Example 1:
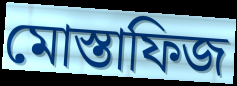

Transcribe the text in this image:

মোস্তাফিজ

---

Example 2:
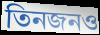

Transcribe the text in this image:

তিনজনও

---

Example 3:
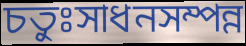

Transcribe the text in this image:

চতুঃসাধনসম্পন্ন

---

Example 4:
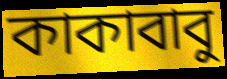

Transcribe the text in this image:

কাকাবাবু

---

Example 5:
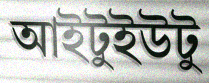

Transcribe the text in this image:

আইটুইউটু